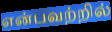
என்பவற்றில்